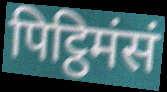
पिट्ठिमंसं